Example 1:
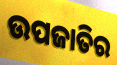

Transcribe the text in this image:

ଉପଜାତିର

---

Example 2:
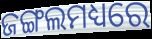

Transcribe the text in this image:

ଜଙ୍ଗଲମଧ୍ୟରେ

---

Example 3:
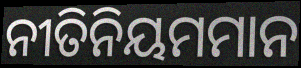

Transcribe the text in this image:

ନୀତିନିୟମମାନ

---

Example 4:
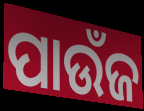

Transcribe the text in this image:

ପାଉଁଜ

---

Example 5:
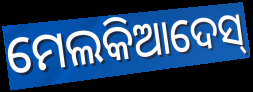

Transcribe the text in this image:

ମେଲକିଆଦେସ୍